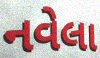
નવેલા